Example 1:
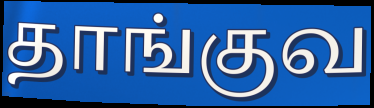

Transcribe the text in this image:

தாங்குவ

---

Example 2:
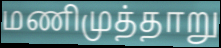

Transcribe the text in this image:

மணிமுத்தாறு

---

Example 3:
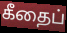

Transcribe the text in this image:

கீதைப்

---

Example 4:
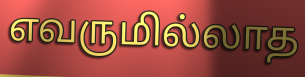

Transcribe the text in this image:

எவருமில்லாத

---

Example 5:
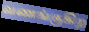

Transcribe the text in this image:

வணங்குகிற